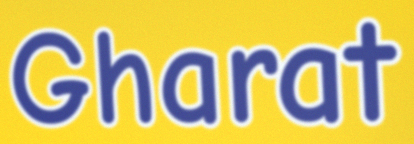
Gharat